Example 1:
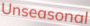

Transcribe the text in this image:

Unseasonal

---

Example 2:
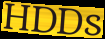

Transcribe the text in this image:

HDDs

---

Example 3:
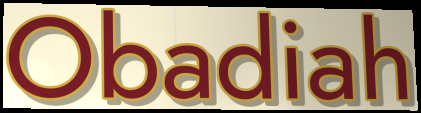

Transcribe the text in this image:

Obadiah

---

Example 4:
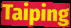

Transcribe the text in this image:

Taiping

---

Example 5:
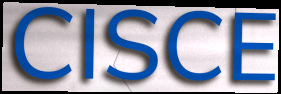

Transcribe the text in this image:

CISCE